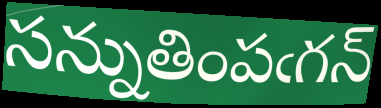
సన్నుతింపఁగన్